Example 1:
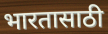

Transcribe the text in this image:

भारतासाठी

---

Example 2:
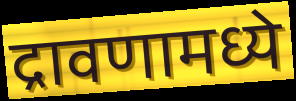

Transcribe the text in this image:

द्रावणामध्ये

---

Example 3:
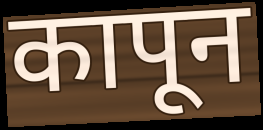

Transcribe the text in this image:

कापून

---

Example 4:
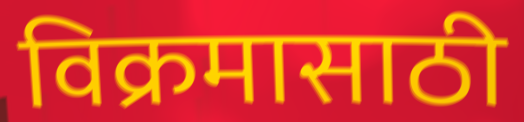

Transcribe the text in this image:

विक्रमासाठी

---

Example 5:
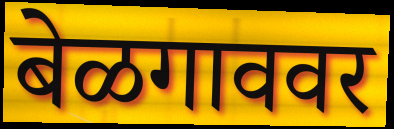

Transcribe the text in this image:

बेळगाववर